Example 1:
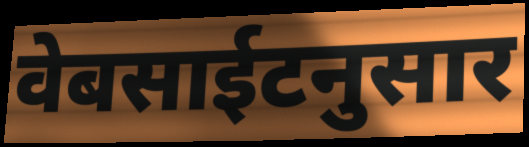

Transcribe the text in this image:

वेबसाईटनुसार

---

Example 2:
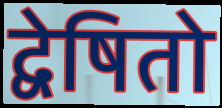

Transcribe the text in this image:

द्वेषितो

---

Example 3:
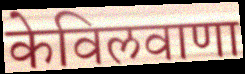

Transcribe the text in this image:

केविलवाणा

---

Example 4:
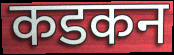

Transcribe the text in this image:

कडकन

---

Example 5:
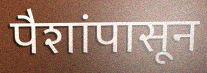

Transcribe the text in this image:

पैशांपासून